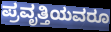
ಪ್ರವೃತ್ತಿಯವರೂ